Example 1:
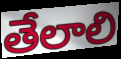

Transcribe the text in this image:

తేలాలి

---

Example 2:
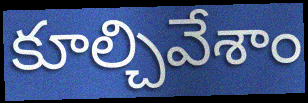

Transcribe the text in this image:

కూల్చివేశాం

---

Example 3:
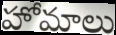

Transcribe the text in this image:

హోమాలు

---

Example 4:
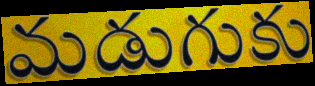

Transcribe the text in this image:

మడుగుకు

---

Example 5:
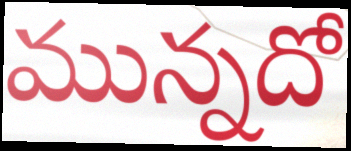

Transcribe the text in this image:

మున్నదో